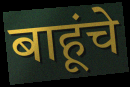
बाहूंचे